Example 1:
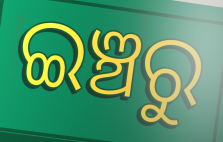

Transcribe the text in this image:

ଇଞ୍ଚରୁ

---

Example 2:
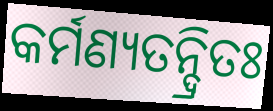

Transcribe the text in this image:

କର୍ମଣ୍ୟତନ୍ଦ୍ରିତଃ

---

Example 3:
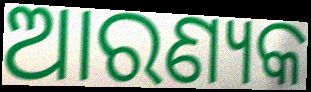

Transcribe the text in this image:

ଆରଣ୍ୟକ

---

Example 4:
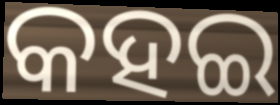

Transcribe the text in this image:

କହଇ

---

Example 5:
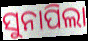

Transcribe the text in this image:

ସୁନାପିଲା